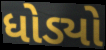
ધોડ્યો